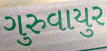
ગુરુવાયુર